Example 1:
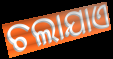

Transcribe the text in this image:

ଚଲାଯାଏ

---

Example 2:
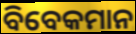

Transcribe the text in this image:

ବିବେକମାନ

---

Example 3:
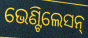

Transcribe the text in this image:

ଭେଣ୍ଟିଲେସନ୍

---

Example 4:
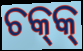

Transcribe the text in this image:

ଚକ୍‌କ୍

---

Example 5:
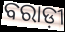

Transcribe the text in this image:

ବରାଡ଼ୀ